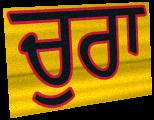
ਚੁਰਾ